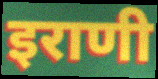
इराणी